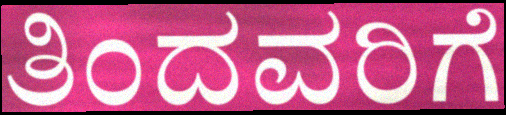
ತಿಂದವರಿಗೆ